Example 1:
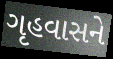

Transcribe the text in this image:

ગૃહવાસને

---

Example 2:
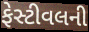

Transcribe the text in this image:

ફેસ્ટીવલની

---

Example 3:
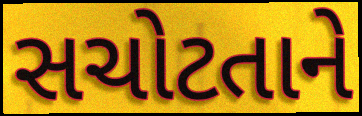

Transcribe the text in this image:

સચોટતાને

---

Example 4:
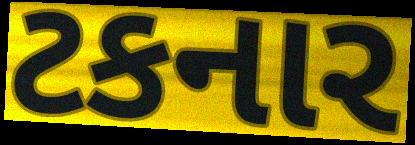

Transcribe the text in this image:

ટકનાર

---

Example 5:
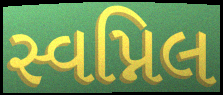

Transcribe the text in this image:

સ્વપ્નિલ